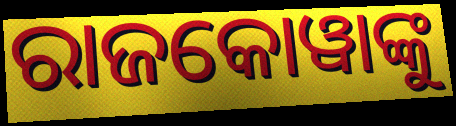
ରାଜକୋୱାଙ୍କୁ